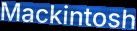
Mackintosh